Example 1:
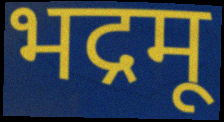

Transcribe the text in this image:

भद्रमू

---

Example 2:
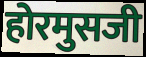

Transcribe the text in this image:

होरमुसजी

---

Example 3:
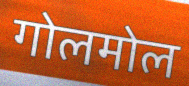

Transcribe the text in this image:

गोलमोल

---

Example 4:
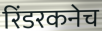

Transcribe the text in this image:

रिंडरकनेच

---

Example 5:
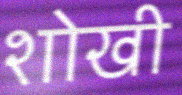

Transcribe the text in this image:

शोखी